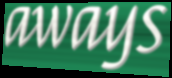
aways